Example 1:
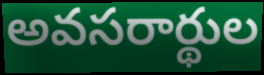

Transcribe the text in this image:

అవసరార్థుల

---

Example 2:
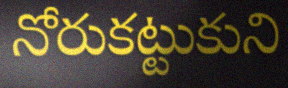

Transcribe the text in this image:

నోరుకట్టుకుని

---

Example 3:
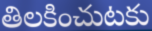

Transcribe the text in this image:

తిలకించుటకు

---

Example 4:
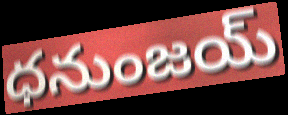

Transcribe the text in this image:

ధనుంజయ్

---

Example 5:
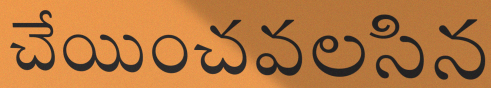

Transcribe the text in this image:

చేయించవలసిన